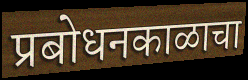
प्रबोधनकाळाचा